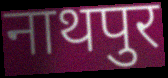
नाथपुर